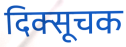
दिक्सूचक